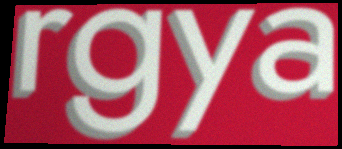
rgya